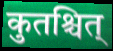
कुतश्चित्